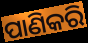
ପାଣିକରି